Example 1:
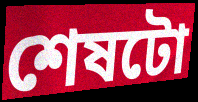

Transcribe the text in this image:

শেষটো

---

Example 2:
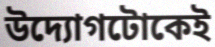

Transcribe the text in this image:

উদ্যোগটোকেই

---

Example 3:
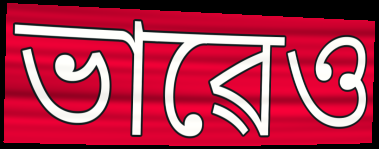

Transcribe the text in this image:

ভাৱেও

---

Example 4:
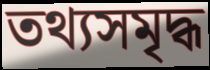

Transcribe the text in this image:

তথ্যসমৃদ্ধ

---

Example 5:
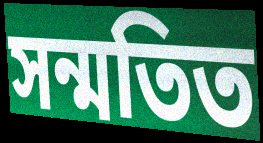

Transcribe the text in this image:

সন্মতিত